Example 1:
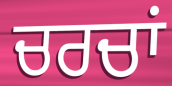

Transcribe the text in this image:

ਚਰਚਾਂ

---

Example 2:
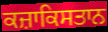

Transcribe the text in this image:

ਕਜ਼ਾਕਿਸਤਾਨ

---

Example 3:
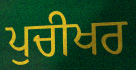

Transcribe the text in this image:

ਪੁਚੀਖਰ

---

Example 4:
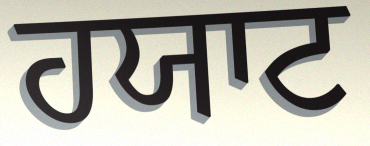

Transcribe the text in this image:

ਹਯਾਟ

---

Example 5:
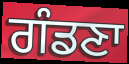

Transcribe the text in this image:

ਗੰਡਣਾ